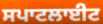
ਸਪਾਟਲਾਈਟ